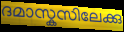
ദമാസ്കസിലേക്കു